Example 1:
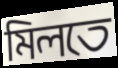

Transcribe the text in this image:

মিলতে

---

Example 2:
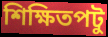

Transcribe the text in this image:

শিক্ষিতপটু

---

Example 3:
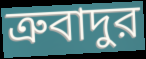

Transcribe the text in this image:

ত্রুবাদুর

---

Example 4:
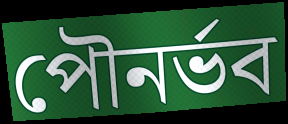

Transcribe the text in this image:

পৌনর্ভব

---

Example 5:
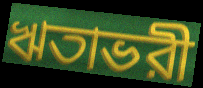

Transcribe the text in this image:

ঋতাভরী